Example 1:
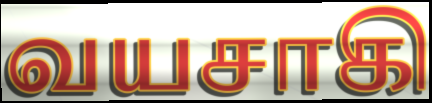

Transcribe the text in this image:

வயசாகி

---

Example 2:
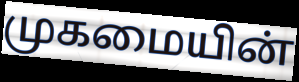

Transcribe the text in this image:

முகமையின்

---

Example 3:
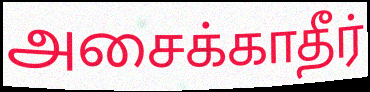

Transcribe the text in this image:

அசைக்காதீர்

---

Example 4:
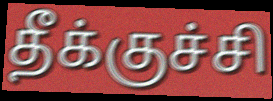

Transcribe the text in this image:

தீக்குச்சி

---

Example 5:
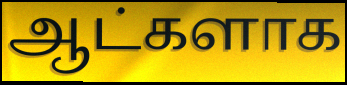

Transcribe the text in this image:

ஆட்களாக